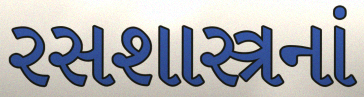
રસશાસ્ત્રનાં